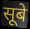
सूबे